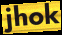
jhok